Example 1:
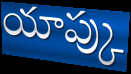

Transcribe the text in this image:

యాప్కు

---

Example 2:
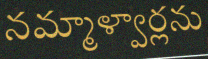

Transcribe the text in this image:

నమ్మాళ్వార్లను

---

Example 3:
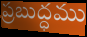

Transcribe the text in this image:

ప్రబుద్ధము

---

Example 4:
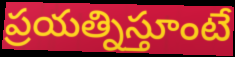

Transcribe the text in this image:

ప్రయత్నిస్తూంటే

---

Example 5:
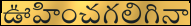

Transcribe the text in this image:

ఊహించగలిగినా